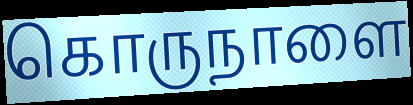
கொருநாளை